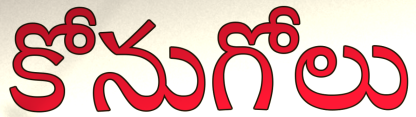
కోనుగోలు